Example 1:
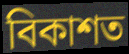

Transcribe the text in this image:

বিকাশত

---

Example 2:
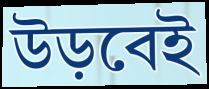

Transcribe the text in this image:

উড়বেই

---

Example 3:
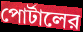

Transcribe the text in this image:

পোর্টালের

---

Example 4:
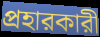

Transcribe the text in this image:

প্রহারকারী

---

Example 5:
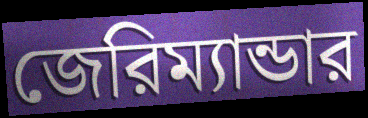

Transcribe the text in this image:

জেরিম্যান্ডার